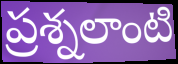
ప్రశ్నలాంటి